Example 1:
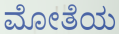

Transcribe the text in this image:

ಮೋತೆಯ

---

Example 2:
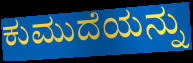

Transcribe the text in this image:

ಕುಮುದೆಯನ್ನು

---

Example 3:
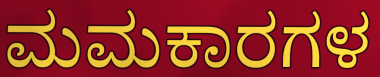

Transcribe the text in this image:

ಮಮಕಾರಗಳ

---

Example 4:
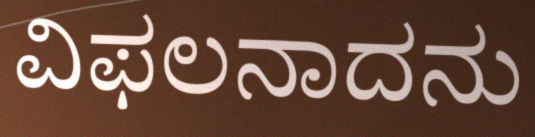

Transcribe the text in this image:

ವಿಫಲನಾದನು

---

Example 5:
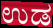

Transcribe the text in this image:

ಉಡ